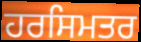
ਹਰਸਿਮਤਰ